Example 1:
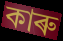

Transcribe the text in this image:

কাৰু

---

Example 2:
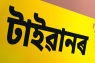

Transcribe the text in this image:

টাইৱানৰ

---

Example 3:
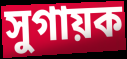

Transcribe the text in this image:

সুগায়ক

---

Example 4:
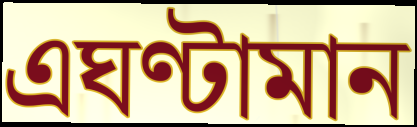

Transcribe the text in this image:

এঘণ্টামান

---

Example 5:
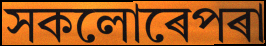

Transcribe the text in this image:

সকলোৰেপৰা